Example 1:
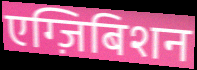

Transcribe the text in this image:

एग्ज़िबिशन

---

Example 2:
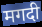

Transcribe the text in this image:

मगदी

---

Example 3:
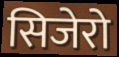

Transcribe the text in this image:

सिजेरो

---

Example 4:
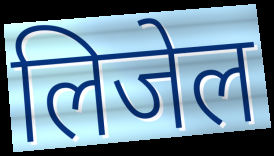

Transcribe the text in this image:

लिजेल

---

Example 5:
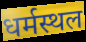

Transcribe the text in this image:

धर्मस्थल